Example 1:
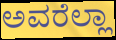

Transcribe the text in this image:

ಅವರೆಲ್ಲಾ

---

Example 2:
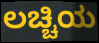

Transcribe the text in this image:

ಲಚ್ಚಿಯ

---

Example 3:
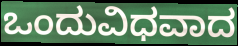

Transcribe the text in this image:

ಒಂದುವಿಧವಾದ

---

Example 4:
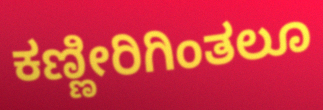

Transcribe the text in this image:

ಕಣ್ಣೀರಿಗಿಂತಲೂ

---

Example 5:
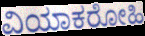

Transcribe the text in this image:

ವಿಯಾಕರೋಹಿ